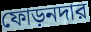
ফোড়নদার